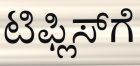
ಟಿಫ್ಲಿಸ್‍ಗೆ